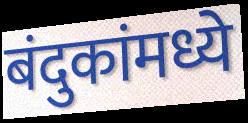
बंदुकांमध्ये